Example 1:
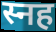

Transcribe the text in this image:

स्नह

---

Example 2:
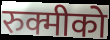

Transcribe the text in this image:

रुक्मीको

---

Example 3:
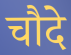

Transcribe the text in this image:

चौदे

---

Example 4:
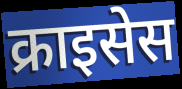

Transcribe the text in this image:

क्राइसेस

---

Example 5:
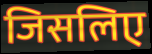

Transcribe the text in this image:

जिसलिए